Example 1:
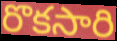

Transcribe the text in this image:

రొకసారి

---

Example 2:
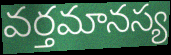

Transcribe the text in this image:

వర్తమానస్య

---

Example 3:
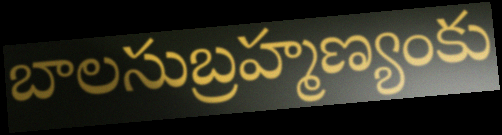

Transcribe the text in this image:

బాలసుబ్రహ్మణ్యంకు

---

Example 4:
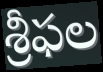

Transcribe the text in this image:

శ్రీఫల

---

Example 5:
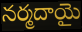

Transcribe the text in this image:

నర్మదాయై